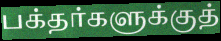
பக்தர்களுக்குத்